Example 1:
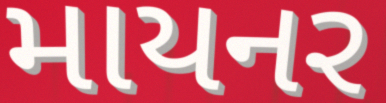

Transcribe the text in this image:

માયનર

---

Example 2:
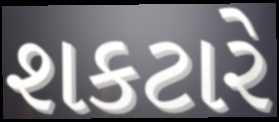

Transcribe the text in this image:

શકટારે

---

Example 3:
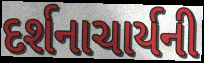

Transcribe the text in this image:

દર્શનાચાર્યની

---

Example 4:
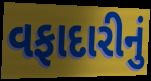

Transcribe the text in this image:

વફાદારીનું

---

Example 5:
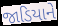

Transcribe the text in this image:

જાડિયાને